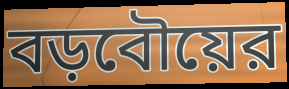
বড়বৌয়ের